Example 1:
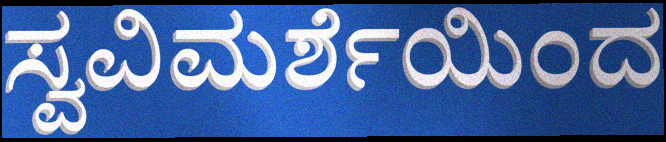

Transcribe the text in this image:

ಸ್ವವಿಮರ್ಶೆಯಿಂದ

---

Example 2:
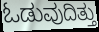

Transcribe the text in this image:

ಓಡುವುದಿತ್ತು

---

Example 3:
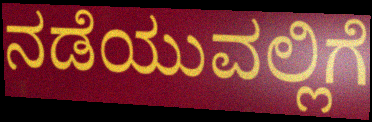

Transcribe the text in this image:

ನಡೆಯುವಲ್ಲಿಗೆ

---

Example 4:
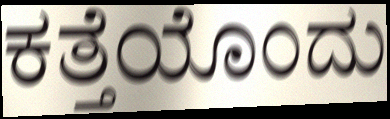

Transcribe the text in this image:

ಕತ್ತೆಯೊಂದು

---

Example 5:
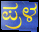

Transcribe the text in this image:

ಪ್ರಳ